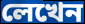
লেখেন